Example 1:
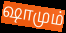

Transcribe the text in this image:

ஷாமும்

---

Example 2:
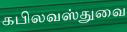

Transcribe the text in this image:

கபிலவஸ்துவை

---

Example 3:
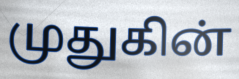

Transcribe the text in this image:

முதுகின்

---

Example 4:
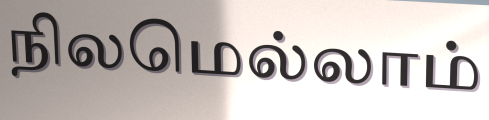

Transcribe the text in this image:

நிலமெல்லாம்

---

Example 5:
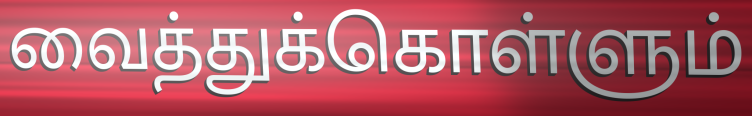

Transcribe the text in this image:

வைத்துக்கொள்ளும்